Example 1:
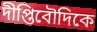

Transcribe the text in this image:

দীপ্তিবৌদিকে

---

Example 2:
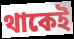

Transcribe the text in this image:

থাকেই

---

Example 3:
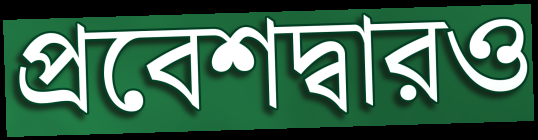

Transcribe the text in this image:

প্রবেশদ্বারও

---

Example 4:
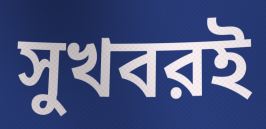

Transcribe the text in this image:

সুখবরই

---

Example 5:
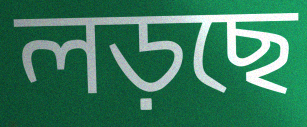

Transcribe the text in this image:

লড়ছে